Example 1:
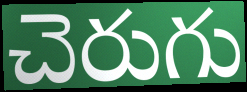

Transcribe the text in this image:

చెరుగు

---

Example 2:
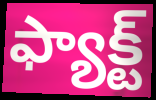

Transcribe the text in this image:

ఫ్యాక్ట్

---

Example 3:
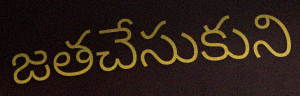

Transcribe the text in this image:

జతచేసుకుని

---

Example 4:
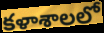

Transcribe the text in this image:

కళాశాలలో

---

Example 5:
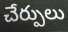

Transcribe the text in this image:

చేర్పులు